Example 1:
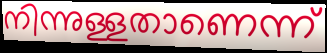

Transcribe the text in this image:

നിന്നുള്ളതാണെന്ന്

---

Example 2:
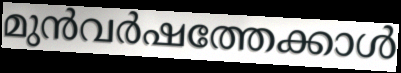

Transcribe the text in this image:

മുൻവർഷത്തേക്കാൾ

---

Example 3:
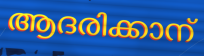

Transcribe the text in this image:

ആദരിക്കാന്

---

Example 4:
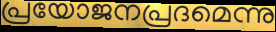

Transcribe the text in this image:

പ്രയോജനപ്രദമെന്നു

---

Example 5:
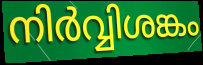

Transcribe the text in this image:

നിർവ്വിശങ്കം